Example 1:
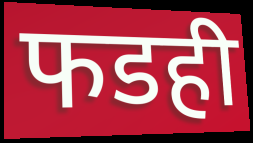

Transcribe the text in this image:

फडही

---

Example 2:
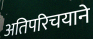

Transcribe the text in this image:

अतिपरिचयाने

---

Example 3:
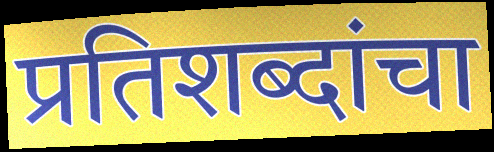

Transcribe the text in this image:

प्रतिशब्दांचा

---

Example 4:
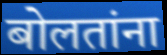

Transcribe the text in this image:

बोलतांना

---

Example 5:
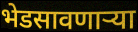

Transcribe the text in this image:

भेडसावणार्‍या